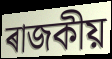
ৰাজকীয়